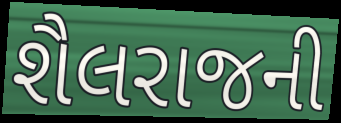
શૈલરાજની